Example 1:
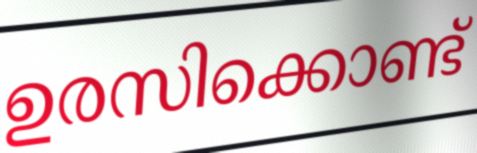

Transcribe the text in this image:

ഉരസിക്കൊണ്ട്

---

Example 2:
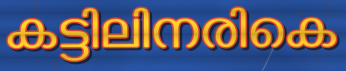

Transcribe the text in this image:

കട്ടിലിനരികെ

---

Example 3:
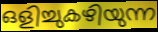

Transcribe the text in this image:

ഒളിച്ചുകഴിയുന്ന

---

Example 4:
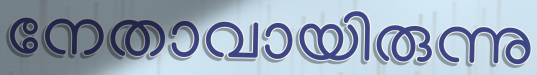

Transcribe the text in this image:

നേതാവായിരുന്നു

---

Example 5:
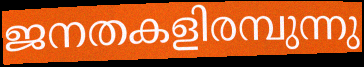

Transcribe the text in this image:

ജനതകളിരമ്പുന്നു